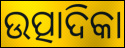
ଉତ୍ପାଦିକା